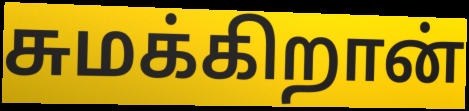
சுமக்கிறான்